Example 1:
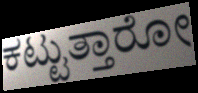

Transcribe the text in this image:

ಕಟ್ಟುತ್ತಾರೋ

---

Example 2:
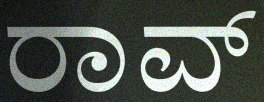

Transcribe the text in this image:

ರಾವ್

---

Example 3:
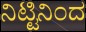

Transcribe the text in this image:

ನಿಟ್ಟಿನಿಂದ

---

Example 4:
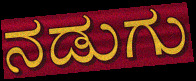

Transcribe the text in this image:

ನಡುಗು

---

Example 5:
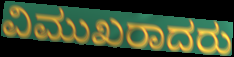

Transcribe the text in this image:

ವಿಮುಖರಾದರು